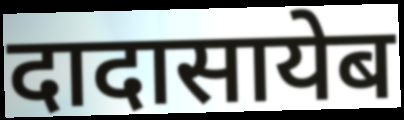
दादासायेब